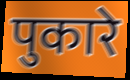
पुकारे